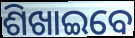
ଶିଖାଇବେ